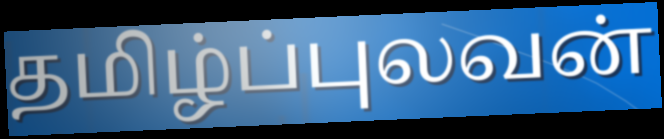
தமிழ்ப்புலவன்